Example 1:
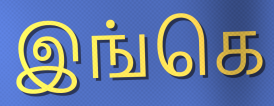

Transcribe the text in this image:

இங்கெ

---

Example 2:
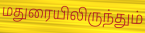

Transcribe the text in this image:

மதுரையிலிருந்தும்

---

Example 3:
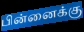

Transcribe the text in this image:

பின்னைக்கு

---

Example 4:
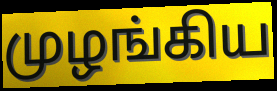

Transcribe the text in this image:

முழங்கிய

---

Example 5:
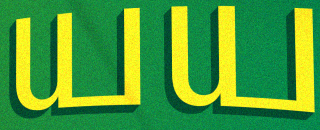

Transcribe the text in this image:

யய